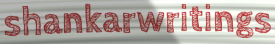
shankarwritings